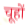
चूहों